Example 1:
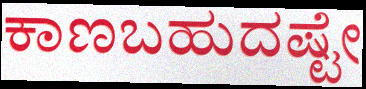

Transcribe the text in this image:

ಕಾಣಬಹುದಷ್ಟೇ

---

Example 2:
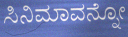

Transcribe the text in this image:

ಸಿನಿಮಾವನ್ನೋ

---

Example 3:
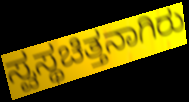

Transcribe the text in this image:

ಸ್ವಸ್ಥಚಿತ್ತನಾಗಿರು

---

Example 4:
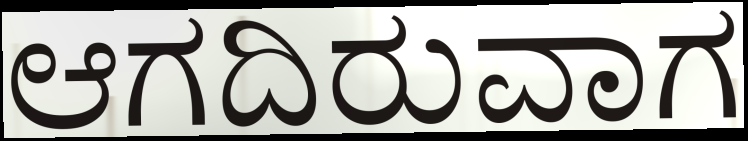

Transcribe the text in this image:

ಆಗದಿರುವಾಗ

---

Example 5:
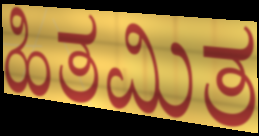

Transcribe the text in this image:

ಹಿತಮಿತ